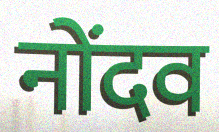
नोंदव